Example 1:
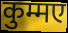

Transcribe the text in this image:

कुम्मए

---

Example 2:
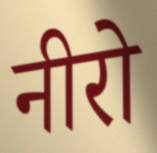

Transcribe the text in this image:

नीरो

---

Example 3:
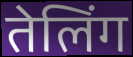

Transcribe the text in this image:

तेलिंग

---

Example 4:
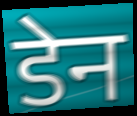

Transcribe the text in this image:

डेन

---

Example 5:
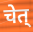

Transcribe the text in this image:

चेत्